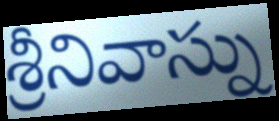
శ్రీనివాస్ను